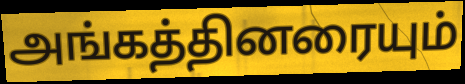
அங்கத்தினரையும்